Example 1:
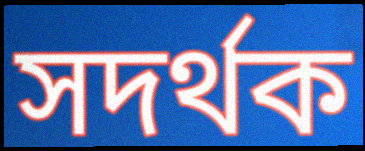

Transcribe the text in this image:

সদর্থক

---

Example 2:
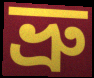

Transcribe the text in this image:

ভ্রু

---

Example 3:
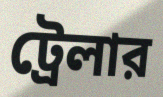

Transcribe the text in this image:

ট্রেলার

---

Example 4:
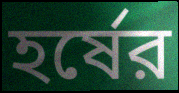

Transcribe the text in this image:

হর্ষের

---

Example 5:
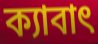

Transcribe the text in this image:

ক্যাবাৎ